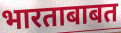
भारताबाबत